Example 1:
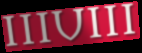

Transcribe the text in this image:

IIIUIII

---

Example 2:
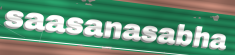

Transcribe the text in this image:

saasanasabha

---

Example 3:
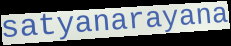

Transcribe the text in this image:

satyanarayana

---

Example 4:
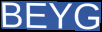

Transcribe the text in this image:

BEYG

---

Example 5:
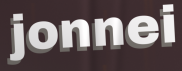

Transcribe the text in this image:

jonnei